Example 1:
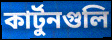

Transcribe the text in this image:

কার্টুনগুলি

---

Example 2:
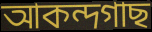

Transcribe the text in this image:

আকন্দগাছ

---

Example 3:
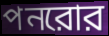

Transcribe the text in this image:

পনরোর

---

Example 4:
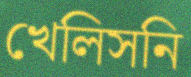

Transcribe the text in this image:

খেলিসনি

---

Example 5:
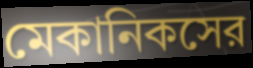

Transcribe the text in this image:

মেকানিকসের